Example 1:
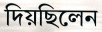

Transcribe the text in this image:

দিয়ছিলেন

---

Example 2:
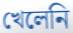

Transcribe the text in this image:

খেলেনি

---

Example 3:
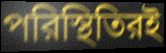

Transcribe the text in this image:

পরিস্থিতিরই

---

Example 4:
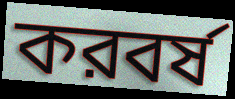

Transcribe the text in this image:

করবর্ষ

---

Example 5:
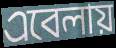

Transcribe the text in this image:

এবেলায়